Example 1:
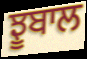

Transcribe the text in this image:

ਝੂਬਾਲ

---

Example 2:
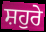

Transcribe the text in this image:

ਸ਼ਹੁਰੇ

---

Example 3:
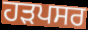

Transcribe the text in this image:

ਹੜਪਸਰ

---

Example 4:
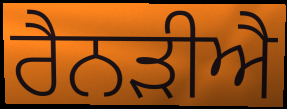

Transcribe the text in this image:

ਰੈਨੜੀਐ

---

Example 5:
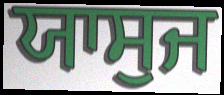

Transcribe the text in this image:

ਯਾਸੁਜ